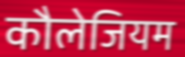
कौलेजियम